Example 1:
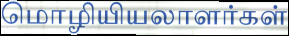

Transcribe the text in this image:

மொழியியலாளர்கள்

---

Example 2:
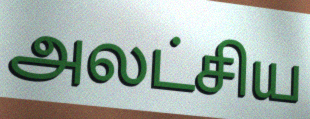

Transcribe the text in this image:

அலட்சிய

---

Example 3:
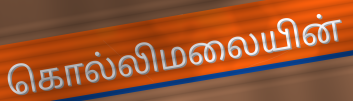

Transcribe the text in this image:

கொல்லிமலையின்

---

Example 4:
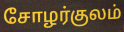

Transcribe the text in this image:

சோழர்குலம்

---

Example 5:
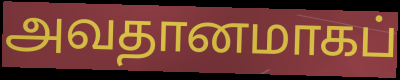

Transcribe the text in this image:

அவதானமாகப்